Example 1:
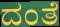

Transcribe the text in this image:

ದಂತೆ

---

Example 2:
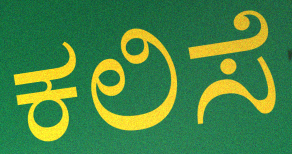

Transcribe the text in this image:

ಕಲಿಸೆ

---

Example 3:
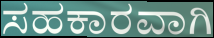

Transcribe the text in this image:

ಸಹಕಾರವಾಗಿ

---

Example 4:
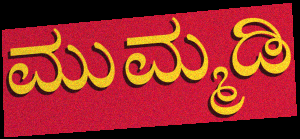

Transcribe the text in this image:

ಮುಮ್ಮಡಿ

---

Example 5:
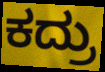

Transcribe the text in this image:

ಕದ್ರು